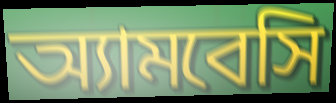
অ্যামবেসি